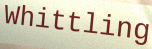
Whittling